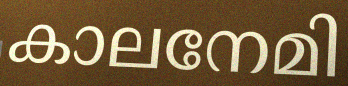
കാലനേമി